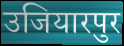
उजियारपुर